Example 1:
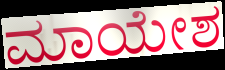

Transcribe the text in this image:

ಮಾಯೇಶ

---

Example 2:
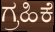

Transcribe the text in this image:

ಗ್ರಹಿಕೆ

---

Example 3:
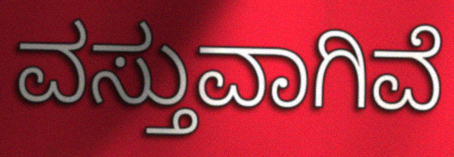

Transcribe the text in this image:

ವಸ್ತುವಾಗಿವೆ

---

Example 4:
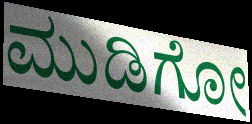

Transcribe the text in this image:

ಮುಡಿಗೋ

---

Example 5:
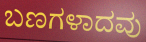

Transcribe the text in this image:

ಬಣಗಳಾದವು